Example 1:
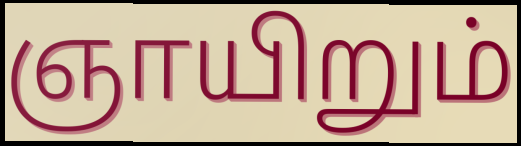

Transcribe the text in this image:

ஞாயிறும்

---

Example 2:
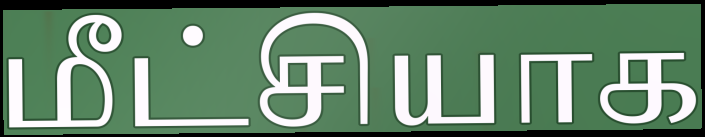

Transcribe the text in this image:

மீட்சியாக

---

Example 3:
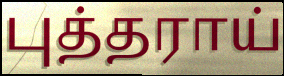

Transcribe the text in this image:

புத்தராய்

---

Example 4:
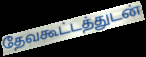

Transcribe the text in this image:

தேவகூட்டத்துடன்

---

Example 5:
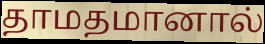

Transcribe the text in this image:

தாமதமானால்